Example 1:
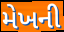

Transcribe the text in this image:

મેખની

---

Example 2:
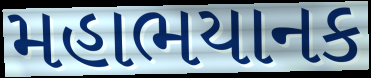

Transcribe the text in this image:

મહાભયાનક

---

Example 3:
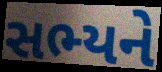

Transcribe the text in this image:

સભ્યને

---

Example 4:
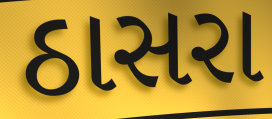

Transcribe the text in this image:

ઠાસરા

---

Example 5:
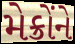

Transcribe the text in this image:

મેક્રોંને